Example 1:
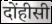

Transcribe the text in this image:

दोंहीसी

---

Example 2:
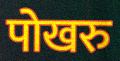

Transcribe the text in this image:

पोखरु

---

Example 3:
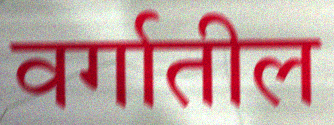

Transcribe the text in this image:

वर्गातील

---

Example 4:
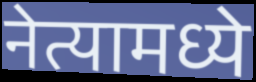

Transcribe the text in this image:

नेत्यामध्ये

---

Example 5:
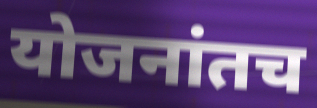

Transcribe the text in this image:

योजनांतच